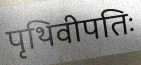
पृथिवीपतिः